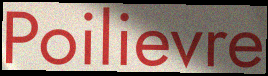
Poilievre